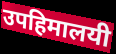
उपहिमालयी